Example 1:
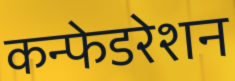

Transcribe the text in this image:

कन्‍फेडरेशन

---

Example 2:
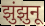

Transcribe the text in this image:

झुंझुनू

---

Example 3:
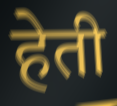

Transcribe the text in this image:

हेती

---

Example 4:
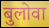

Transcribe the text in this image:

बुलोवा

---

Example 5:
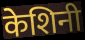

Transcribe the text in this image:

केशिनी